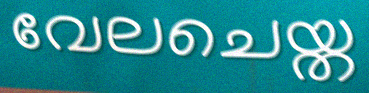
വേലചെയ്ത